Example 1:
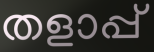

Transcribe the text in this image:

തളാപ്പ്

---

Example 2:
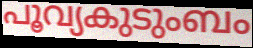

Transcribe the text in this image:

പൂവ്യകുടുംബം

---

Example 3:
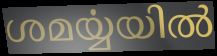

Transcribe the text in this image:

ശമൎയ്യയിൽ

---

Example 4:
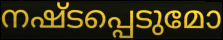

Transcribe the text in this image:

നഷ്ടപ്പെടുമോ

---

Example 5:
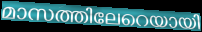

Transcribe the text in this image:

മാസത്തിലേറെയായി